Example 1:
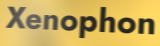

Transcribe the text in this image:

Xenophon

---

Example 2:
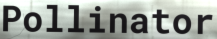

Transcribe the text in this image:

Pollinator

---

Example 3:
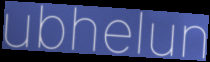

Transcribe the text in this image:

ubhelun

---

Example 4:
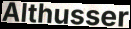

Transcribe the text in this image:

Althusser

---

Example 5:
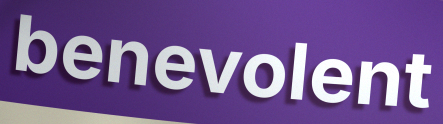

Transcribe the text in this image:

benevolent